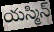
యస్మిన్